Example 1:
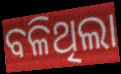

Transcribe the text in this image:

ବଳିଥିଲା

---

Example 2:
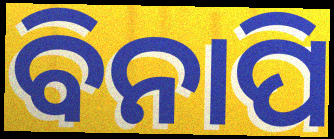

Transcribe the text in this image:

ବିନାପି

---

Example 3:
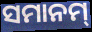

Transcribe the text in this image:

ସମାନମ୍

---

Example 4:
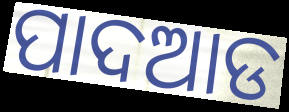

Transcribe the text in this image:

ପାଦଆଡ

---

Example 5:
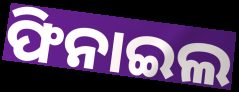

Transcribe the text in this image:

ଫିନାଇଲ